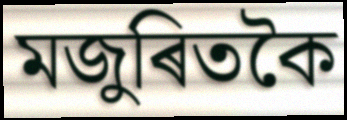
মজুৰিতকৈ